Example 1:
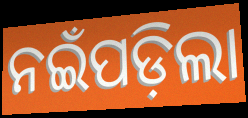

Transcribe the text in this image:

ନଇଁପଡ଼ିଲା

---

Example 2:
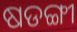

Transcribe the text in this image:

ଷଡଙ୍ଗୀ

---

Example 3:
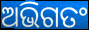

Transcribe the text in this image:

ଅଭିଗତଂ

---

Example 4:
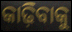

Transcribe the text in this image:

କାଢ଼ିବାକୁ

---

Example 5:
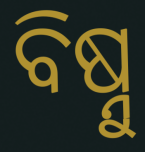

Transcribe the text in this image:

ବିଷ୍ନୁ